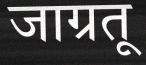
जाग्रतू